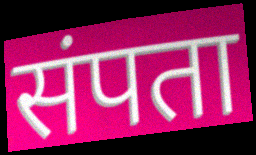
संपता